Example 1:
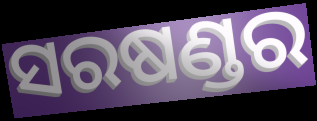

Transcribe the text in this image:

ସରଷଣ୍ଡର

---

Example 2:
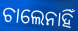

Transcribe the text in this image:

ଚାଲେନାହିଁ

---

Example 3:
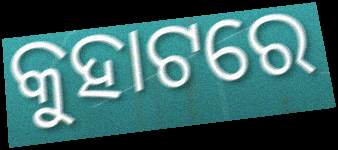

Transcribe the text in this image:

କୁହାଟରେ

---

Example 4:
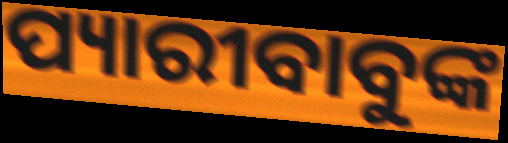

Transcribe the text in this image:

ପ୍ୟାରୀବାବୁଙ୍କ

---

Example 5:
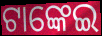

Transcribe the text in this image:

ଟାଙ୍କେଇ